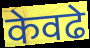
केवढे